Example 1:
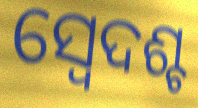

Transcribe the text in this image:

ସ୍ବେଦଶ୍ଚ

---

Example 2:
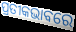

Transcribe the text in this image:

ପ୍ରତୀକଭାବରେ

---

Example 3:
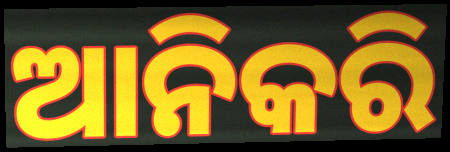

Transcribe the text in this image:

ଆନିକରି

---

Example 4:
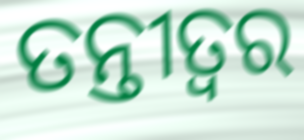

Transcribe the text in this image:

ତନ୍ତୀତ୍ୱର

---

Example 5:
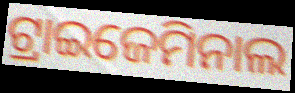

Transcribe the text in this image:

ଟ୍ରାଇଜେମିନାଲ